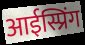
आईस्प्रिंग